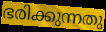
ഭരിക്കുന്നതു